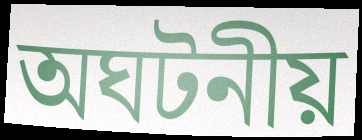
অঘটনীয়